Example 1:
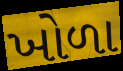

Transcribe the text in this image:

ખોળા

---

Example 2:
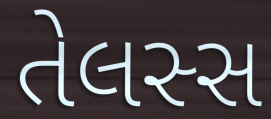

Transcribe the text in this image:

તેલસ્સ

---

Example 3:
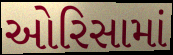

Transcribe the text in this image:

ઓરિસામાં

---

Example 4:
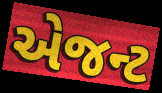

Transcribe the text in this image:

એજન્ટ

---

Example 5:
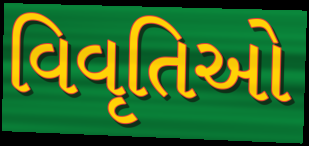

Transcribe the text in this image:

વિવૃતિઓ